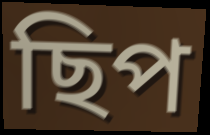
ছিপ